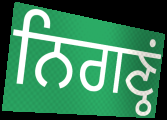
ਨਿਗਣ੍ਠਂ